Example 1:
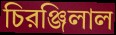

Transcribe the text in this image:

চিরঞ্জিলাল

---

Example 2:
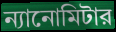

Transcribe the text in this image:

ন্যানোমিটার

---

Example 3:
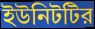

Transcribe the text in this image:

ইউনিটটির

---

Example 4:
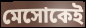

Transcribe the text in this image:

মেসোকেই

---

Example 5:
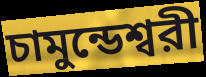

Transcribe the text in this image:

চামুন্ডেশ্বরী